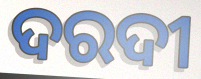
ଦରଦୀ